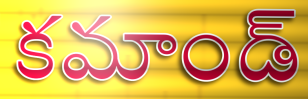
కమాండ్